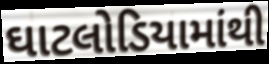
ઘાટલોડિયામાંથી